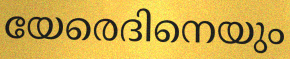
യേരെദിനെയും